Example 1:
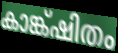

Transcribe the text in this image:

കാങ്ക്ഷിതം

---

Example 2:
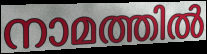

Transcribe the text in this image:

നാമത്തിൽ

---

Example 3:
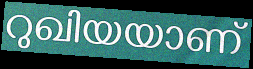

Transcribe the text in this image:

റുഖിയയാണ്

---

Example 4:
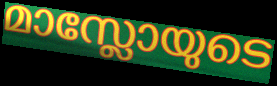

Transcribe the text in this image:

മാസ്ലോയുടെ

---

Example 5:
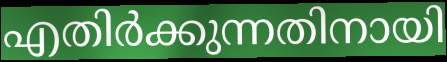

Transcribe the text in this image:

എതിർക്കുന്നതിനായി